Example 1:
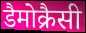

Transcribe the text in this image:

डैमोक्रैसी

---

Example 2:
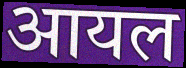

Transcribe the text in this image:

आयल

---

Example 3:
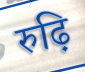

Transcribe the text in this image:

रुढ़ि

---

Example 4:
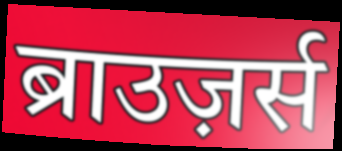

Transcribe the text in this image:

ब्राउज़र्स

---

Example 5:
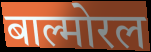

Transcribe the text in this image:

बाल्‍मोरल